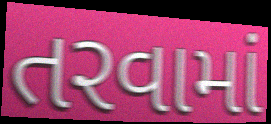
તરવામાં